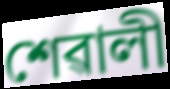
শেৱালী